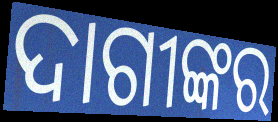
ଦାଗୀଙ୍କର